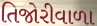
તિજોરીવાળા